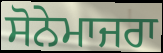
ਸੋਨੇਮਾਜਰਾ